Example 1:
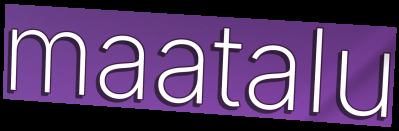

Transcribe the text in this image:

maatalu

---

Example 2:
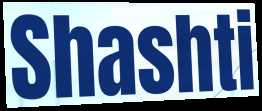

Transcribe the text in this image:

Shashti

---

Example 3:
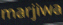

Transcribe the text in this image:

marjiwa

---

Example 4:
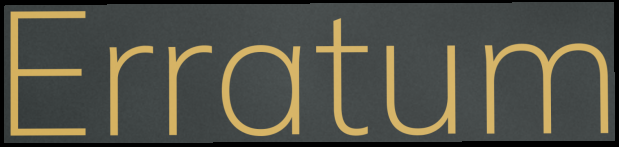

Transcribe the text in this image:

Erratum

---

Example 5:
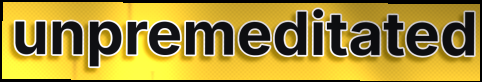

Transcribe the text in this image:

unpremeditated